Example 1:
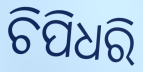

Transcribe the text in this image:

ଚିପିଧରି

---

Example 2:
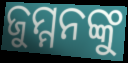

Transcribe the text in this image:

ଜୁମ୍ମନଙ୍କୁ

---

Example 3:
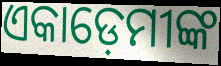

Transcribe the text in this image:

ଏକାଡ଼େମୀଙ୍କ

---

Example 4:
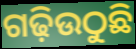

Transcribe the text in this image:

ଗଢ଼ିଉଠୁଛି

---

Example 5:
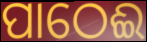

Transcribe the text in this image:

ପାଠେଈ